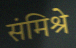
संमिश्रे